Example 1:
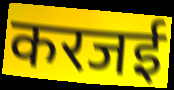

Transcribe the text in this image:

करजई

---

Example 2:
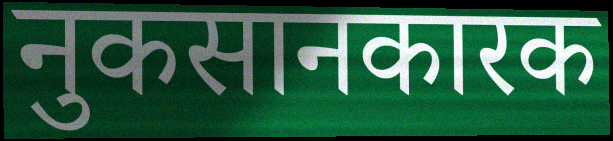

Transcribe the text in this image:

नुकसानकारक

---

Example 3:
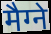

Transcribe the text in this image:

मैग्ने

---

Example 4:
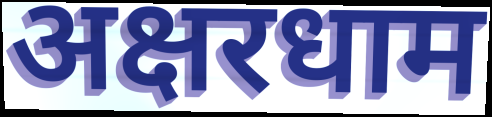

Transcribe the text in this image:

अक्षरधाम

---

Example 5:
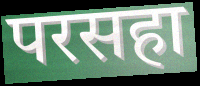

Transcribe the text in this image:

परसहा